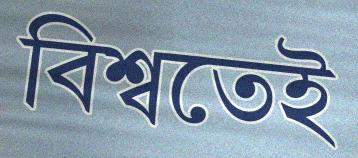
বিশ্বতেই